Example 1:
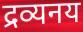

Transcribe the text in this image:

द्रव्यनय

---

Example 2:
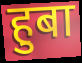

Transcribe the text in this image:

हुबा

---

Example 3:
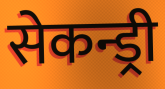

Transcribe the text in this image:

सेकन्ड्री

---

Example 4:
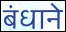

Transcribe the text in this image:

बंधाने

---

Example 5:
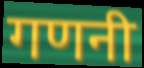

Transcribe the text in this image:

गणनी